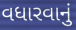
વધારવાનું